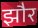
झौर